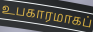
உபகாரமாகப்